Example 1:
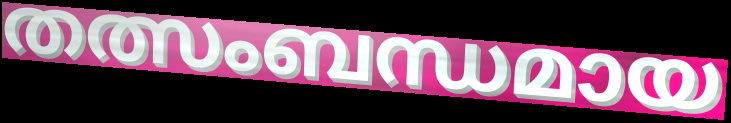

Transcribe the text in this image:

തത്സംബന്ധമായ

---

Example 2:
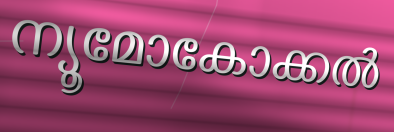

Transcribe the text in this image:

ന്യൂമോകോക്കൽ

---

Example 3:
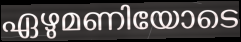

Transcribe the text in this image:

ഏഴുമണിയോടെ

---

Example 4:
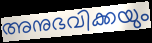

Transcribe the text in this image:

അനുഭവിക്കയും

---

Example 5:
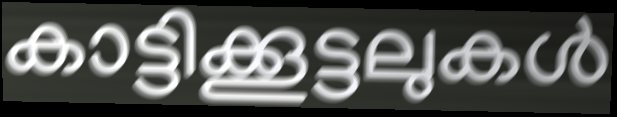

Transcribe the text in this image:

കാട്ടിക്കൂട്ടലുകൾ